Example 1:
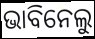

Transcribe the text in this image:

ଭାବିନେଲୁ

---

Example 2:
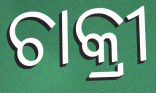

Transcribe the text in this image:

ଚାକ୍ରୀ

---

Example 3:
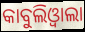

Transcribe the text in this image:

କାବୁଲିଓ୍ୱାଲା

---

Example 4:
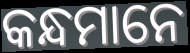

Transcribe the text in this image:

କନ୍ଧମାନେ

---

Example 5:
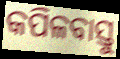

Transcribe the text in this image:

କପିଳବାସ୍ତୁ